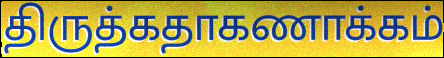
திருத்கதாகணாக்கம்